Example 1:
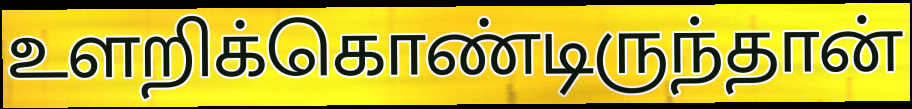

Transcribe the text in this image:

உளறிக்கொண்டிருந்தான்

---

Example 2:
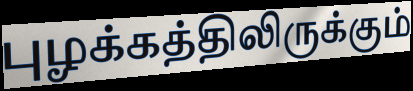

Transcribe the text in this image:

புழக்கத்திலிருக்கும்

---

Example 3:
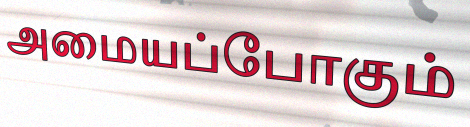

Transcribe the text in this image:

அமையப்போகும்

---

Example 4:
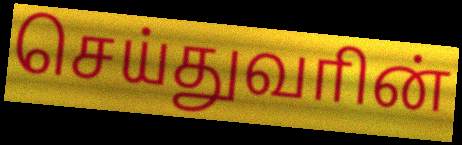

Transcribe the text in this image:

செய்துவரின்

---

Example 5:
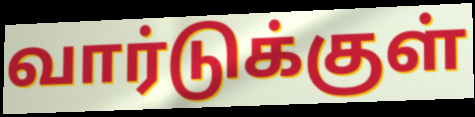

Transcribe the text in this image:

வார்டுக்குள்